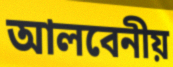
আলবেনীয়